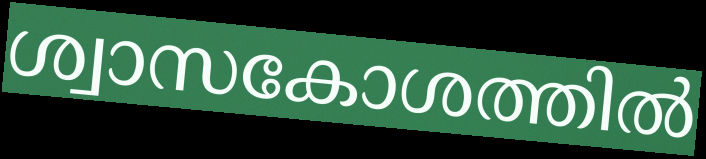
ശ്വാസകോശത്തിൽ